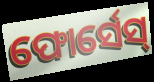
ଫୋର୍ସେସ୍